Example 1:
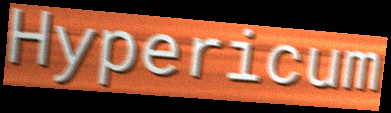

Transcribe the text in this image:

Hypericum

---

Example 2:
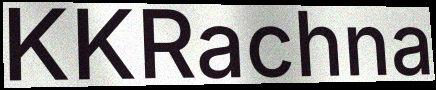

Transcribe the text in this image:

KKRachna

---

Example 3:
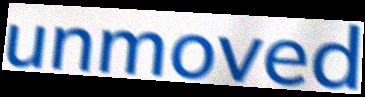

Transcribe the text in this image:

unmoved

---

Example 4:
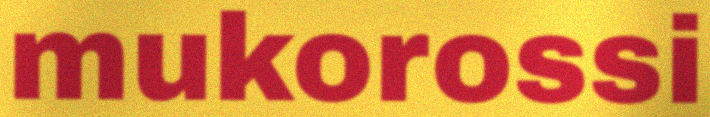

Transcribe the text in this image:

mukorossi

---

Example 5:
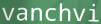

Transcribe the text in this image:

vanchvi